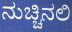
ನುಚ್ಚಿನಲಿ